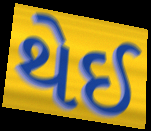
થેઈ